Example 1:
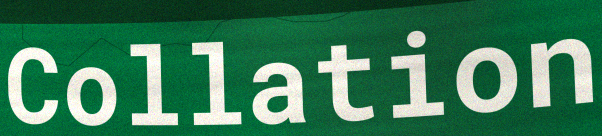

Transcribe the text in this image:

Collation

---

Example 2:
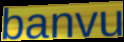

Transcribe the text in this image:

banvu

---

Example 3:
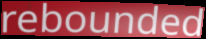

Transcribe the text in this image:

rebounded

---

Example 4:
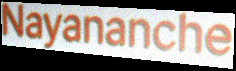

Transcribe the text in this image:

Nayananche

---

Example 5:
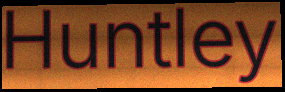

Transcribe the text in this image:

Huntley